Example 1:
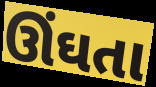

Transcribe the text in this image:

ઊંઘતા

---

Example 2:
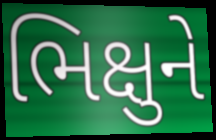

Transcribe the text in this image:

ભિક્ષુને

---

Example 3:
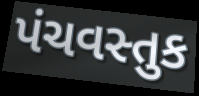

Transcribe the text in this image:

પંચવસ્તુક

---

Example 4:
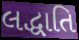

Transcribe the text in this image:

લદ્ધાતિ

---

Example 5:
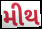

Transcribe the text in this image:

મીથ